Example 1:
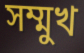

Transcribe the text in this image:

সম্মুখ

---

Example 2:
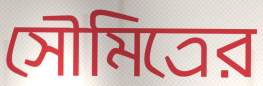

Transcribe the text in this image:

সৌমিত্রের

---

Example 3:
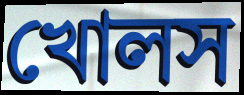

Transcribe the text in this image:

খোলস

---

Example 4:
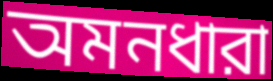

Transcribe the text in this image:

অমনধারা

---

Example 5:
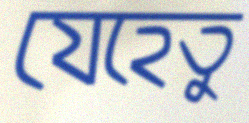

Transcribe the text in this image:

যেহেতু